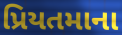
પ્રિયતમાના